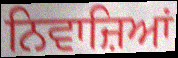
ਨਿਵਾਜ਼ਿਆਂ